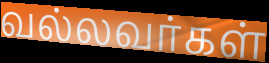
வல்லவர்கள்